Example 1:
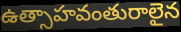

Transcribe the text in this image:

ఉత్సాహవంతురాలైన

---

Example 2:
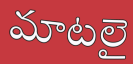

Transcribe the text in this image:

మాటలై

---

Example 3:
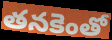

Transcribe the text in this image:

తనకెంతో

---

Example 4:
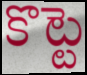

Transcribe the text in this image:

కొట్టె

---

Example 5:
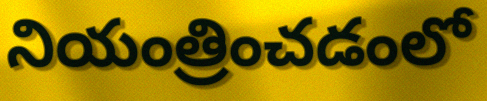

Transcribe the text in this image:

నియంత్రించడంలో